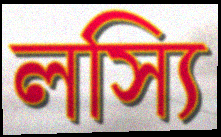
লস্যি